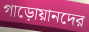
গাড়োয়ানদের